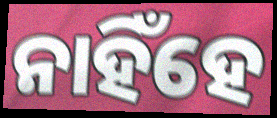
ନାହିଁହେ